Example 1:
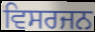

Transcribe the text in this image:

ਵਿਸਰਜਨ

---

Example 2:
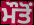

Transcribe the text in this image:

ਮੌਤੋਂ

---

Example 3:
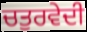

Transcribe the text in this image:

ਚਤੁਰਵੇਦੀ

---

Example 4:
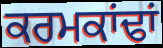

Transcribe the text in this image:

ਕਰਮਕਾਂਢਾਂ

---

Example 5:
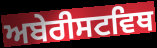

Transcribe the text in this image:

ਅਬੇਰੀਸਟਵਿਥ